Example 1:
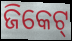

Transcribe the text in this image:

ଜିକେଟ୍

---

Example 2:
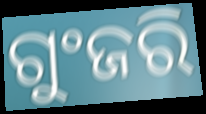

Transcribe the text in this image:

ଗୁଂଜରି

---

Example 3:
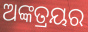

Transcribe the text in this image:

ଅଙ୍କତ୍ରୟର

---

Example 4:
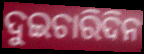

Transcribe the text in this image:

ଦୁଇଚାରିଦିନ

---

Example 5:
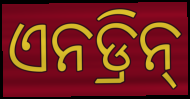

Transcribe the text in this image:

ଏନଡ୍ରିନ୍